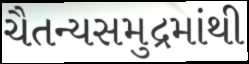
ચૈતન્યસમુદ્રમાંથી